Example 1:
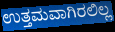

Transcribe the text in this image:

ಉತ್ತಮವಾಗಿರಲಿಲ್ಲ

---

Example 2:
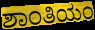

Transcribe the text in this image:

ಶಾಂತಿಯಂ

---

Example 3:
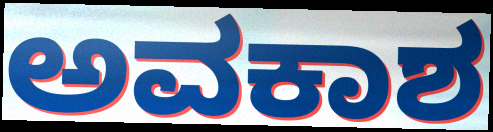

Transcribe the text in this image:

ಅವಕಾಶ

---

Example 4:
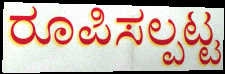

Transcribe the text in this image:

ರೂಪಿಸಲ್ಪಟ್ಟ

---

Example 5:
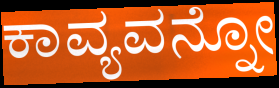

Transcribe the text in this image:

ಕಾವ್ಯವನ್ನೋ